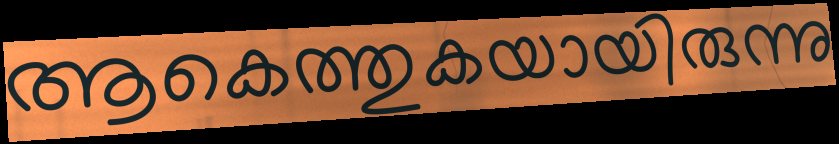
ആകെത്തുകയായിരുന്നു